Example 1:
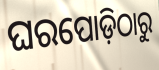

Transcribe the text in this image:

ଘରପୋଡ଼ିଠାରୁ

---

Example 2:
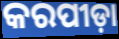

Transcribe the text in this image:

କରପୀଡ଼ା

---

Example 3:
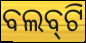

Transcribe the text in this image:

ବଲବ୍‌ଟି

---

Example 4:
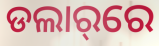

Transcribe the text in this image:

ଡଲାର୍‌ରେ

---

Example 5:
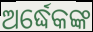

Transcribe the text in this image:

ଅର୍ଦ୍ଧେକଙ୍କ